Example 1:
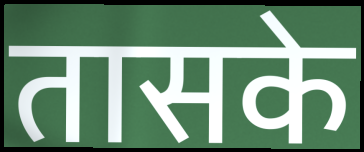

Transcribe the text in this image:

तासके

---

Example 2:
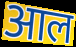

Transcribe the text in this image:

आल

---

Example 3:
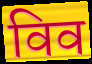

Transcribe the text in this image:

विव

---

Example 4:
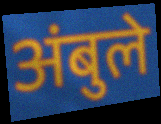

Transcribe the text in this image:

अंबुले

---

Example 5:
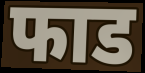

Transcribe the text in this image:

फाड